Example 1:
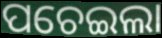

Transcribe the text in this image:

ପଚେଇଲା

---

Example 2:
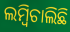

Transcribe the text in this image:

ଲମ୍ବିଚାଲିଛି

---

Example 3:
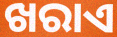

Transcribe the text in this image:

ଖରାଏ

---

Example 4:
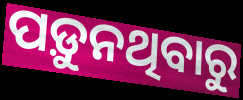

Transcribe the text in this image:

ପଡ଼ୁନଥିବାରୁ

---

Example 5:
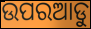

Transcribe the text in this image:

ଉପରଆଡୁ